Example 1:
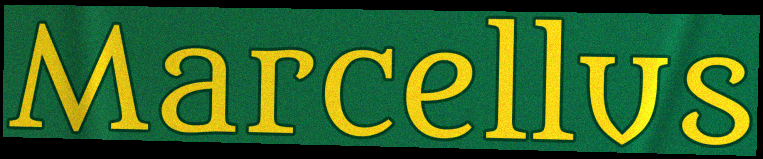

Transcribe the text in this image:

Marcellus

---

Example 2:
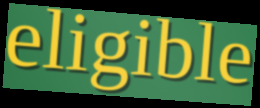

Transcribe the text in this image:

eligible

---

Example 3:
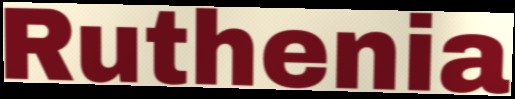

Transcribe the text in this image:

Ruthenia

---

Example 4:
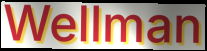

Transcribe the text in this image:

Wellman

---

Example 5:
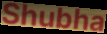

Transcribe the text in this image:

Shubha